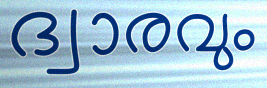
ദ്വാരവും